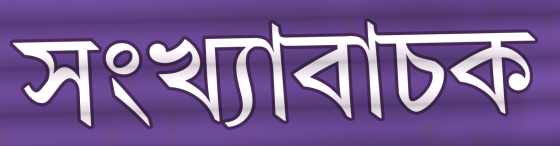
সংখ্যাবাচক